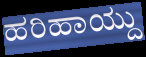
ಹರಿಹಾಯ್ದು